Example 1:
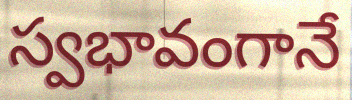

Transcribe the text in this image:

స్వభావంగానే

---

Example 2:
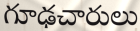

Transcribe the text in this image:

గూఢచారులు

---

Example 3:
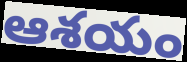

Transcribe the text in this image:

ఆశయం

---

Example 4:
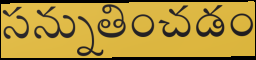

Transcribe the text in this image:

సన్నుతించడం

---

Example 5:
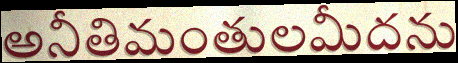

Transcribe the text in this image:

అనీతిమంతులమీదను